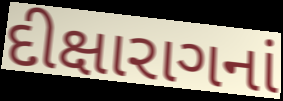
દીક્ષારાગનાં